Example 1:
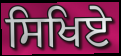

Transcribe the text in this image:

ਸਿਖਿਏ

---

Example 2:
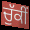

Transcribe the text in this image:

ਚੁੱਕੀਂ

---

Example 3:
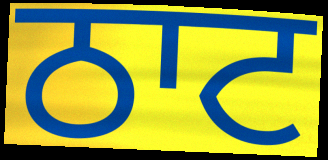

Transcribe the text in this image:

ਠਾਟ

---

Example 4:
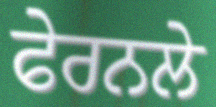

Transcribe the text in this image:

ਫੇਰਨਲੇ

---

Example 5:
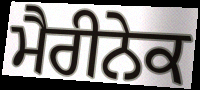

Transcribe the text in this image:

ਮੈਰੀਨੇਕ